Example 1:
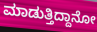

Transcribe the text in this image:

ಮಾಡುತ್ತಿದ್ದಾನೋ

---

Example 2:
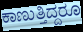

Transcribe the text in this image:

ಕಾಣುತ್ತಿದ್ದರೂ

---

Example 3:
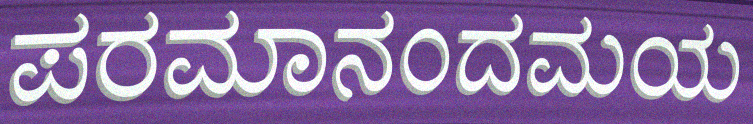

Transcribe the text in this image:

ಪರಮಾನಂದಮಯ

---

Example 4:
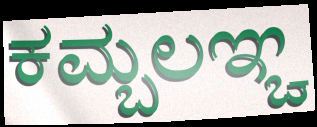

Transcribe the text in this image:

ಕಮ್ಬಲಞ್ಚ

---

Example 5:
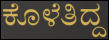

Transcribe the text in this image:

ಕೊಳೆತಿದ್ದ